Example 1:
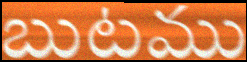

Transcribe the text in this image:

బుటము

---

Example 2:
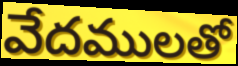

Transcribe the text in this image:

వేదములతో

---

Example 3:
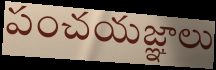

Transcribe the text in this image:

పంచయజ్ఞాలు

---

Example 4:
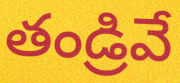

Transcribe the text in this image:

తండ్రివే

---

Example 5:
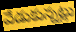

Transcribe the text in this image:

వేడుకున్నట్లు